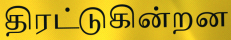
திரட்டுகின்றன